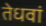
तेधवां